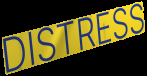
DISTRESS